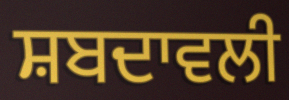
ਸ਼ਬਦਾਵਲੀ